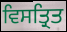
ਵਿਸਤ੍ਰਿਤ